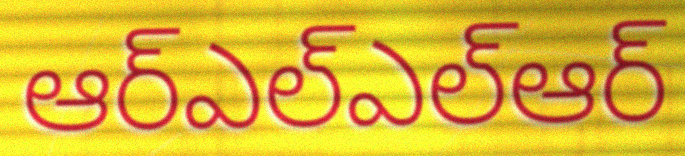
ఆర్ఎల్ఎల్ఆర్